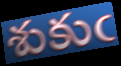
శుకుఁ